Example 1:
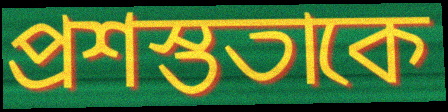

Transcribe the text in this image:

প্রশস্ততাকে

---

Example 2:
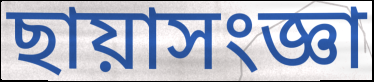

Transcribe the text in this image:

ছায়াসংজ্ঞা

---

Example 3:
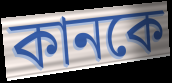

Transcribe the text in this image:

কানকে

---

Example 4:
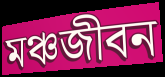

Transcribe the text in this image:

মঞ্চজীবন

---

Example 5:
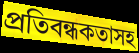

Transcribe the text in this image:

প্রতিবন্ধকতাসহ